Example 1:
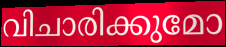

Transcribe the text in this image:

വിചാരിക്കുമോ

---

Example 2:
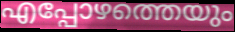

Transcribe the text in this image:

എപ്പോഴത്തെയും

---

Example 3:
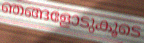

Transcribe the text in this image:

ഞങ്ങളോടുകൂടെ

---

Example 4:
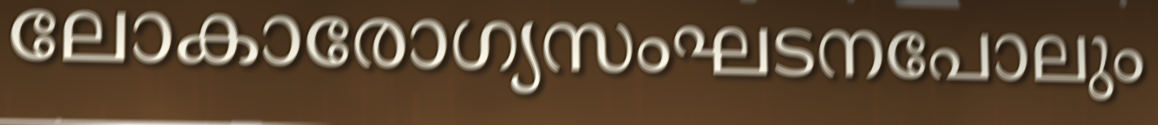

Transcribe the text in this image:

ലോകാരോഗ്യസംഘടനപോലും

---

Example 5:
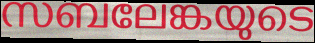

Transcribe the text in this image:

സബലേങ്കയുടെ